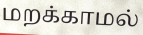
மறக்காமல்